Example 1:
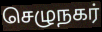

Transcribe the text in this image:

செழுநகர்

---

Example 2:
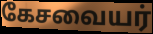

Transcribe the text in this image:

கேசவையர்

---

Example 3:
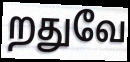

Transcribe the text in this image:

றதுவே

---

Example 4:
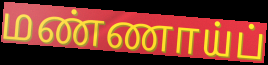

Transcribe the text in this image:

மண்ணாய்ப்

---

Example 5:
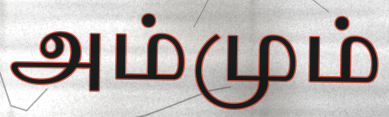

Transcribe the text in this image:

அம்மும்